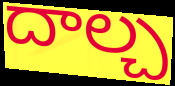
దాల్చ